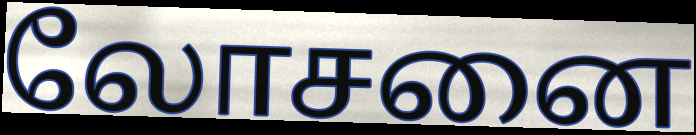
லோசனை